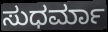
ಸುಧರ್ಮಾ